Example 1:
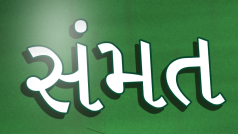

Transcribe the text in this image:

સંમત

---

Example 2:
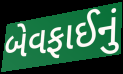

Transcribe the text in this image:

બેવફાઈનું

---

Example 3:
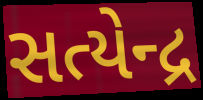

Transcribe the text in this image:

સત્યેન્દ્ર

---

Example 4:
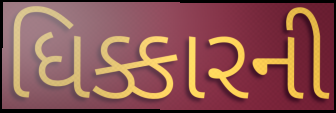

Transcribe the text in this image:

ધિક્કારની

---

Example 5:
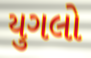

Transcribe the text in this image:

યુગલો